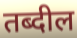
तब्दील